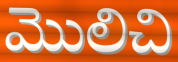
మొలిచి